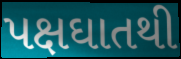
પક્ષઘાતથી